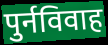
पुर्नविवाह